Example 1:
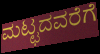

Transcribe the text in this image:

ಮಟ್ಟದವರೆಗೆ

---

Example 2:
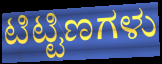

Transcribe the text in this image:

ಟಿಟ್ಟಿಣಗಳು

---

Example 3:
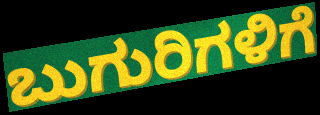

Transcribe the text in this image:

ಬುಗುರಿಗಳಿಗೆ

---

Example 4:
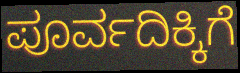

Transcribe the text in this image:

ಪೂರ್ವದಿಕ್ಕಿಗೆ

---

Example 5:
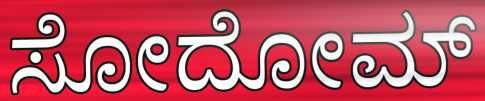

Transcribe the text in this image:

ಸೋದೋಮ್